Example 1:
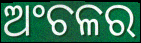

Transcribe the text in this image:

ଅଂଚଳର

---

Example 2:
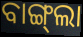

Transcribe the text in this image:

ବାଙ୍ଗ୍‍ଲା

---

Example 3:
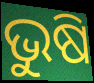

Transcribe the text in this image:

ଭୁଷି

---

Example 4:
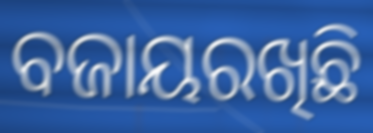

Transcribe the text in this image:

ବଜାୟରଖିଛି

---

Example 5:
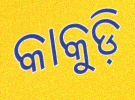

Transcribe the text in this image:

କାକୁଡ଼ି